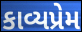
કાવ્યપ્રેમ